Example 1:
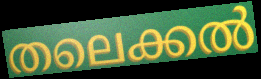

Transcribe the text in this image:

തലെക്കൽ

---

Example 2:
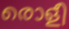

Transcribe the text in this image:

രൊളീ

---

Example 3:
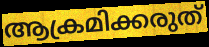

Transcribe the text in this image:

ആക്രമിക്കരുത്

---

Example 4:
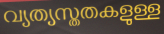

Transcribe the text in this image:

വ്യത്യസ്തതകളുള്ള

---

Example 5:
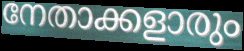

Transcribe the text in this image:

നേതാക്കളാരും